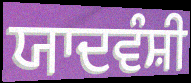
ਯਾਦਵੰਸ਼ੀ